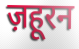
ज़हूरन